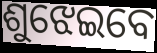
ଶୁଝେଇବେ